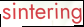
sintering